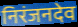
निरंजनदेव